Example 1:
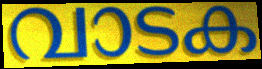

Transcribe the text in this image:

വാടക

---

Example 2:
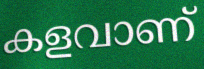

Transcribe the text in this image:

കളവാണ്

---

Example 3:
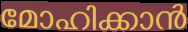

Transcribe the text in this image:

മോഹിക്കാൻ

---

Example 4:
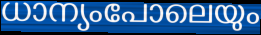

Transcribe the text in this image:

ധാന്യംപോലെയും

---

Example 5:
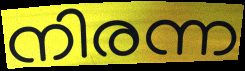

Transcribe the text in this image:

നിരന്ന